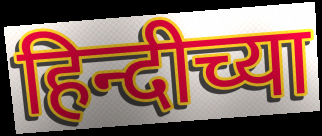
हिन्दीच्या